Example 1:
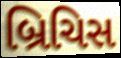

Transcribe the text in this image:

બ્રિચિસ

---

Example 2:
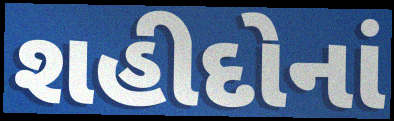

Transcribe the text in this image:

શહીદોનાં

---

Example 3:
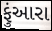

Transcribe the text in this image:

ફુંઆરા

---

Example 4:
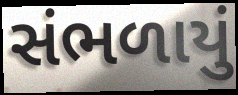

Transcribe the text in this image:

સંભળાયું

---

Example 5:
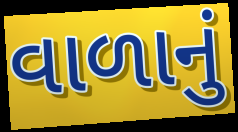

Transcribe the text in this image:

વાળાનું